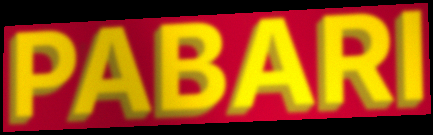
PABARI